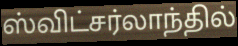
ஸ்விட்சர்லாந்தில்